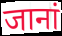
जानां